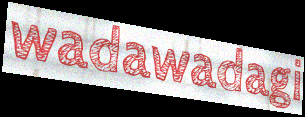
wadawadagi